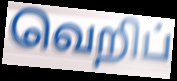
வெறிப்